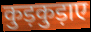
कुड़कुड़ाए